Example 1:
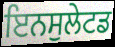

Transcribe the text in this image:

ਇਨਸੁਲੇਟਡ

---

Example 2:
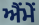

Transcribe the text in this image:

ਐਂਮੇਂ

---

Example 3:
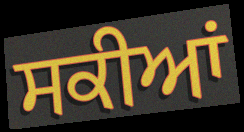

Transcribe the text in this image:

ਸਕੀਆਂ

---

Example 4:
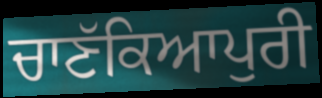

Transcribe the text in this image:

ਚਾਣੱਕਿਆਪੁਰੀ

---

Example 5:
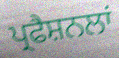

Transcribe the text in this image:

ਪ੍ਰਫੈਸ਼ਨਲਾਂ